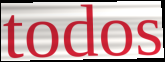
todos